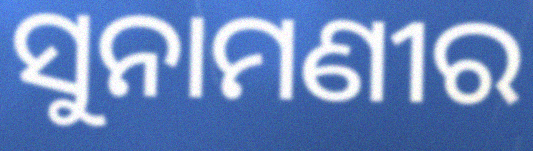
ସୁନାମଣୀର